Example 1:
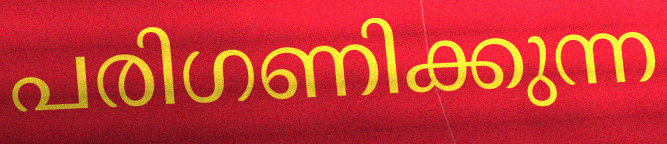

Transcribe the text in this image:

പരിഗണിക്കുന്ന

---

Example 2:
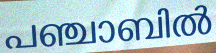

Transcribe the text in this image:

പഞ്ചാബിൽ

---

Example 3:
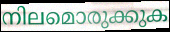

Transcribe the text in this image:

നിലമൊരുക്കുക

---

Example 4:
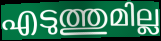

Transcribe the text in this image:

എടുത്തുമില്ല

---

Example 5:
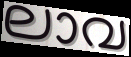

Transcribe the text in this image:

ലാവ